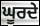
ਘੂਰਦੇ